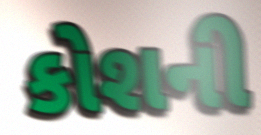
કોશની